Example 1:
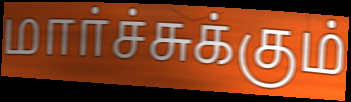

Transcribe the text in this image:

மார்ச்சுக்கும்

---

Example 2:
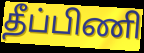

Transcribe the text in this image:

தீப்பிணி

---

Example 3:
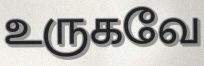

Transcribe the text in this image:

உருகவே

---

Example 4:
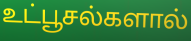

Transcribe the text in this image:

உட்பூசல்களால்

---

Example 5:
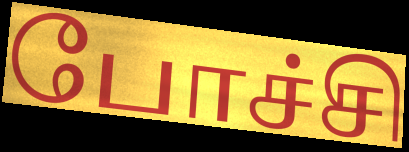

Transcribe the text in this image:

போச்சி